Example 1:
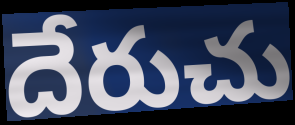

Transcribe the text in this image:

దేరుచు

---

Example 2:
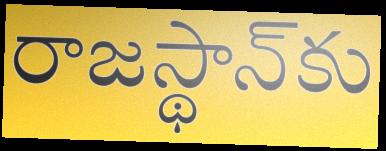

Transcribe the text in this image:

రాజస్థాన్‌కు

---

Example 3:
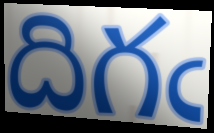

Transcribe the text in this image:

దిగఁ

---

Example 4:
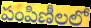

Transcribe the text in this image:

పంపిణీలలో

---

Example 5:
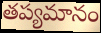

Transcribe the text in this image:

తప్యమానం